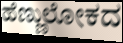
ಹೆಣ್ಣುಲೋಕದ